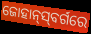
ଜୋହାନ୍‌ସ୍‌ବର୍ଗରେ